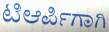
ಟಿಆರ್ಪಿಗಾಗಿ